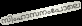
സിംഹാസനംപോലെ